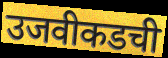
उजवीकडची